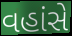
વહાંસે